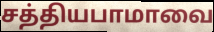
சத்தியபாமாவை